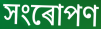
সংৰোপণ